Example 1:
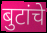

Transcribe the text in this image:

बुटांचे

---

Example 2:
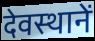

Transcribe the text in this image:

देवस्थानें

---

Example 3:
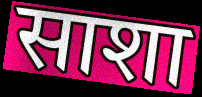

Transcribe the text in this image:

साशा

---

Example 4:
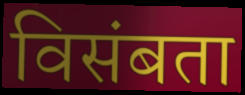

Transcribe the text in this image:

विसंबता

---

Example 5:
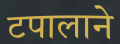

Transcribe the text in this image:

टपालाने